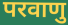
परवाणु